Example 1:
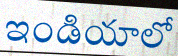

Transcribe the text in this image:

ఇండియాలో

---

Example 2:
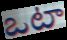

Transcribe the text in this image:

ఒటా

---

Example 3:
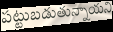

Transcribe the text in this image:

పట్టుబడుతున్నాయని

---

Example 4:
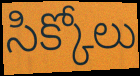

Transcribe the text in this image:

సిక్కోలు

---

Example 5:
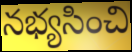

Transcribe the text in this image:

నభ్యసించి